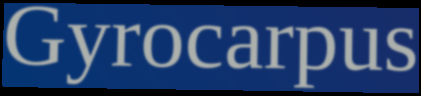
Gyrocarpus